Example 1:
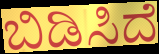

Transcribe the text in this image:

ಬಿಡಿಸಿದೆ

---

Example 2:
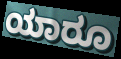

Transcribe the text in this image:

ಯಾರೂ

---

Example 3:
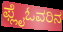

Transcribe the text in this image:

ಫ್ಲೈಓವರಿನ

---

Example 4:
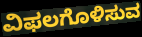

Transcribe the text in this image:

ವಿಫಲಗೊಳಿಸುವ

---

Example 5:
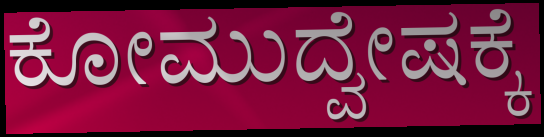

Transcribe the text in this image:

ಕೋಮುದ್ವೇಷಕ್ಕೆ